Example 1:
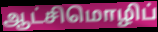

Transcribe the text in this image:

ஆட்சிமொழிப்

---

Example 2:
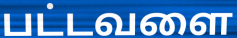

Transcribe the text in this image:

பட்டவளை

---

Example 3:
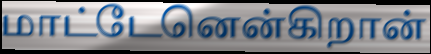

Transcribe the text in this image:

மாட்டேனென்கிறான்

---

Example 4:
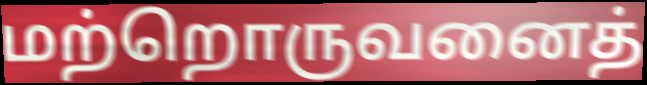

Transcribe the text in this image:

மற்றொருவனைத்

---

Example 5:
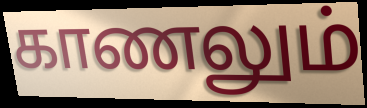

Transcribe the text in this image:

காணலும்